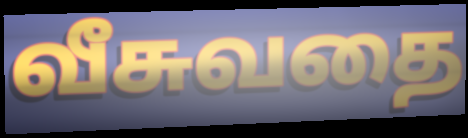
வீசுவதை